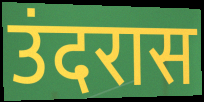
उंदरास